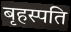
बृहस्‍पति